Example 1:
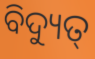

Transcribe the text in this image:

ବିଦ୍ୟୁତ୍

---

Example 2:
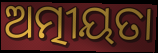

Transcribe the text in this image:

ଅତ୍ମୀୟତା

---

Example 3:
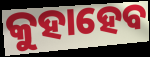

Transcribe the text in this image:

କୁହାହେବ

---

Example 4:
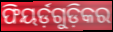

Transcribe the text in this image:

ଫିୟର୍ଡ଼ଗୁଡ଼ିକର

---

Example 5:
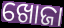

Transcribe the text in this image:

ଖୋଜା